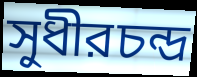
সুধীরচন্দ্র